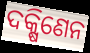
ଦକ୍ଷିଣେନ